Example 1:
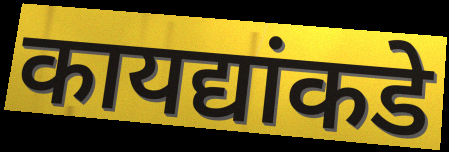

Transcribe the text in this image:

कायद्यांकडे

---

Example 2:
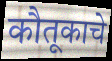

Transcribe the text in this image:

कौतूकाचे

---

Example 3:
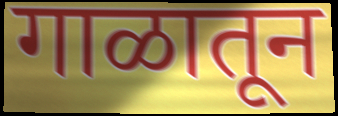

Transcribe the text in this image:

गाळातून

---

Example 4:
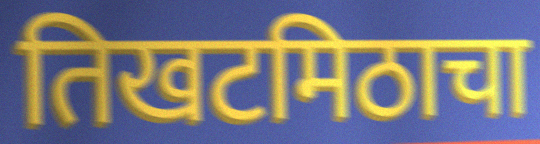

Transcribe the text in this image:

तिखटमिठाचा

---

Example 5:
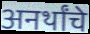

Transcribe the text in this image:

अनर्थांचे